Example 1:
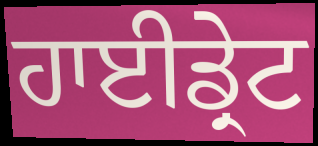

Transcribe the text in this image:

ਹਾਈਡ੍ਰੇਟ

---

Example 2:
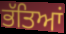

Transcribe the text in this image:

ਭੱਤਿਆਂ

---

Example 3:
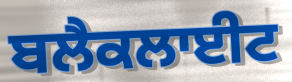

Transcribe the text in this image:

ਬਲੈਕਲਾਈਟ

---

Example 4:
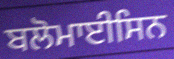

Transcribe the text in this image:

ਬਲੋਮਾਈਸਿਨ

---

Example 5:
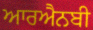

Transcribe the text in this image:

ਆਰਐਨਬੀ